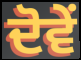
ਦੋਵੇੰ